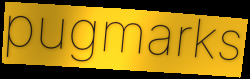
pugmarks